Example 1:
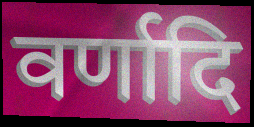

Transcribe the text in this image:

वर्णादि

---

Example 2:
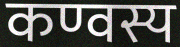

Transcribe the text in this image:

कण्वस्य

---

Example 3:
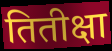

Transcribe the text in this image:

तितीक्षा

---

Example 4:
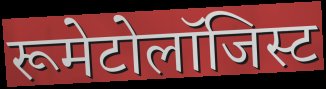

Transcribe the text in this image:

रूमेटोलॉजिस्ट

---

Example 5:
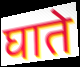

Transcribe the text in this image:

घाते